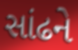
સાંઢને